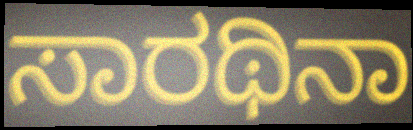
ಸಾರಥಿನಾ